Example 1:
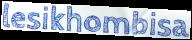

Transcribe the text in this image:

lesikhombisa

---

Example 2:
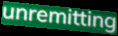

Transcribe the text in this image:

unremitting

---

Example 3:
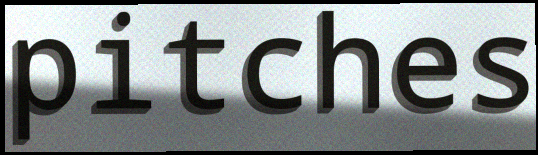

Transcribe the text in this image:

pitches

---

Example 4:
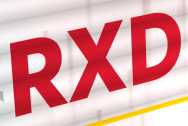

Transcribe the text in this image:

RXD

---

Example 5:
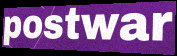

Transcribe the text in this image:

postwar